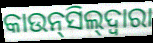
କାଉନ୍‌ସିଲ୍‌ଦ୍ବାରା